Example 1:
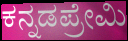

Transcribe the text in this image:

ಕನ್ನಡಪ್ರೇಮಿ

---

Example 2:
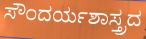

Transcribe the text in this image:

ಸೌಂದರ್ಯಶಾಸ್ತ್ರದ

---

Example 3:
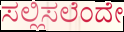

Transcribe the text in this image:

ಸಲ್ಲಿಸಲೆಂದೇ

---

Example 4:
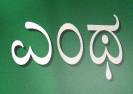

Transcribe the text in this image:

ಎಂಥ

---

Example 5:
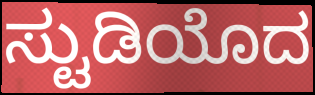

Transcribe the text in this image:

ಸ್ಟುಡಿಯೊದ